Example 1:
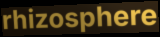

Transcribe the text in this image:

rhizosphere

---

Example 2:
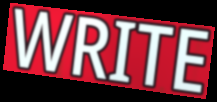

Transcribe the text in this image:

WRITE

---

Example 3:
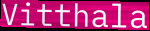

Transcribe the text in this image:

Vitthala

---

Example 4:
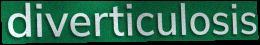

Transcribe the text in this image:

diverticulosis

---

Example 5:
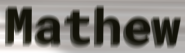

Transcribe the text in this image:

Mathew